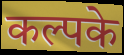
कल्पके